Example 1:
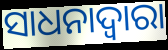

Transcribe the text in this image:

ସାଧନାଦ୍ଵାରା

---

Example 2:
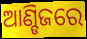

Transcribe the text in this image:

ଆଣ୍ଡିଜରେ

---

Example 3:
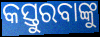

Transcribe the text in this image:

କସ୍ତୁରବାଙ୍କୁ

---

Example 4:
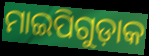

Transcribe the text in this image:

ମାଇପିଗୁଡ଼ାକ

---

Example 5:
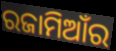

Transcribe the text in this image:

ରଜାମିଆଁର